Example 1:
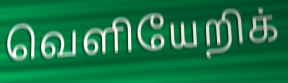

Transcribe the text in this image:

வெளியேறிக்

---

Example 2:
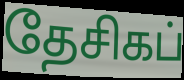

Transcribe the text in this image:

தேசிகப்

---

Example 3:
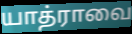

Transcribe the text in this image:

யாத்ராவை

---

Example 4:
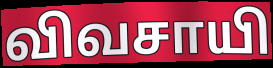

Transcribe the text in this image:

விவசாயி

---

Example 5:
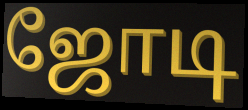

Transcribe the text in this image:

ஜோடி